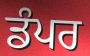
ਡੰਪਰ